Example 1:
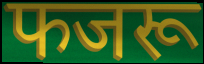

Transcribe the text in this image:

फजरू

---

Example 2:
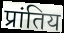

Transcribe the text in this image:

प्रांतिय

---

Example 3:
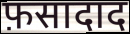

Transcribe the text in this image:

फ़सादाद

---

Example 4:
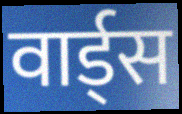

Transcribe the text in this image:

वार्ड्स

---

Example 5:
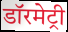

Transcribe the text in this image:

डॉरमेट्री